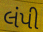
લંપી